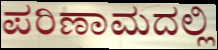
ಪರಿಣಾಮದಲ್ಲಿ